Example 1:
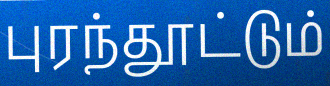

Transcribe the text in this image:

புரந்தூட்டும்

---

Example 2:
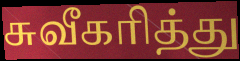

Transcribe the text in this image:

சுவீகரித்து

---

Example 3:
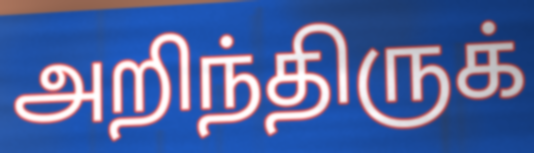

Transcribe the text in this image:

அறிந்திருக்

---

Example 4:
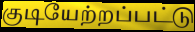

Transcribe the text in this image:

குடியேற்றப்பட்டு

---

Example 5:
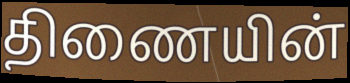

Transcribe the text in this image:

திணையின்